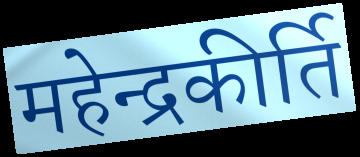
महेन्द्रकीर्ति